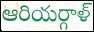
ఆరియర్గాళ్